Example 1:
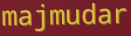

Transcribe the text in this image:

majmudar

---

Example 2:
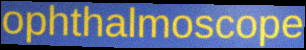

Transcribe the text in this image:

ophthalmoscope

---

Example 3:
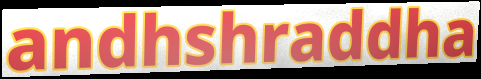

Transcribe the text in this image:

andhshraddha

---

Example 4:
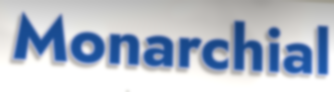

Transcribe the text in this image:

Monarchial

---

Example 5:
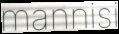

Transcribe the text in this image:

mannisi